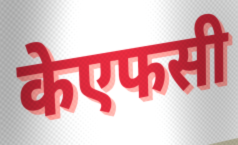
केएफसी